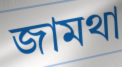
জামথা